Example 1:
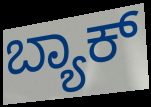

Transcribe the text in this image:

ಬ್ಯಾಕ್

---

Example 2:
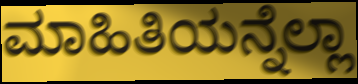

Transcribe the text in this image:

ಮಾಹಿತಿಯನ್ನೆಲ್ಲಾ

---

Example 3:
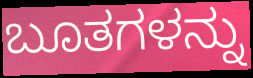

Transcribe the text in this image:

ಬೂತಗಳನ್ನು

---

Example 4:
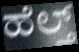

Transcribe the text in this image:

ಹೆಲ್ತ್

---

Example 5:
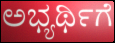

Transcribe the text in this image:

ಅಭ್ಯರ್ಥಿಗೆ